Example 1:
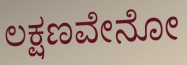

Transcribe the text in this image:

ಲಕ್ಷಣವೇನೋ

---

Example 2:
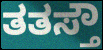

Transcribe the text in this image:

ತತಸ್ತೌ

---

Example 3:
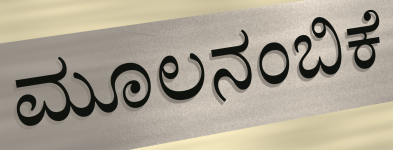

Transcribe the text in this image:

ಮೂಲನಂಬಿಕೆ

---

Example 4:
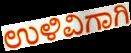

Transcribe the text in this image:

ಉಳಿವಿಗಾಗಿ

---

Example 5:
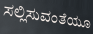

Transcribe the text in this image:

ಸಲ್ಲಿಸುವಂತೆಯೂ